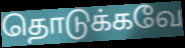
தொடுக்கவே